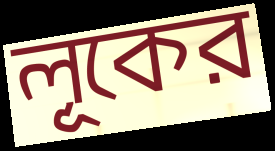
লূকের